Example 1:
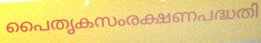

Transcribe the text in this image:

പൈതൃകസംരക്ഷണപദ്ധതി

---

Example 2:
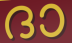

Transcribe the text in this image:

ദാ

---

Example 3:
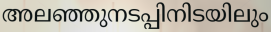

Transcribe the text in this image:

അലഞ്ഞുനടപ്പിനിടയിലും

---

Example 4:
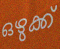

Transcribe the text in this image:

ഒഴുക്ക്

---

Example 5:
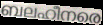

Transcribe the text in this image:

ബലഹീനരെ